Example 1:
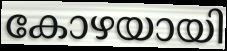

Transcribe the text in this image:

കോഴയായി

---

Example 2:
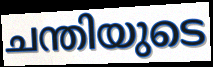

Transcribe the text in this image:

ചന്തിയുടെ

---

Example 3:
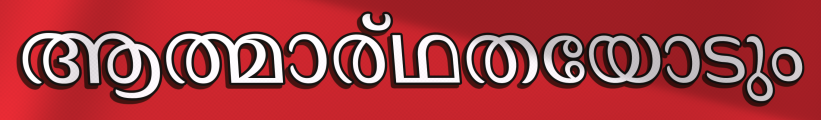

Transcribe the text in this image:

ആത്മാര്ഥതയോടും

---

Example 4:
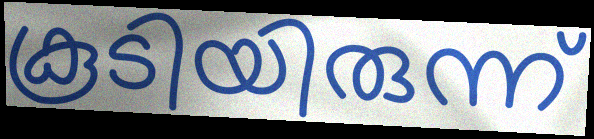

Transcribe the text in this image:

കൂടിയിരുന്ന്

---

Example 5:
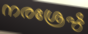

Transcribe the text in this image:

നരശ്രേഷ്ഠ